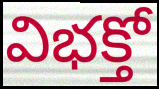
విభక్తో